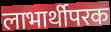
लाभार्थीपरक